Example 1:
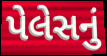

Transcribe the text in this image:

પેલેસનું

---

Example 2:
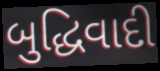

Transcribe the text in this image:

બુદ્ધિવાદી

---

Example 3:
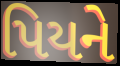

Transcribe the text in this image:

પિયને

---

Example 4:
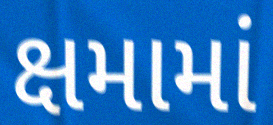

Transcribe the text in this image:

ક્ષમામાં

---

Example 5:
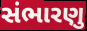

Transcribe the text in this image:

સંભારણુ